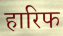
हारिफ